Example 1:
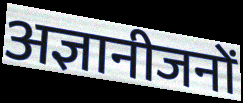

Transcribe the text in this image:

अज्ञानीजनों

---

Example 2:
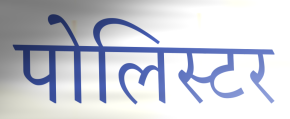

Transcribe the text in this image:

पोलिस्टर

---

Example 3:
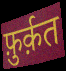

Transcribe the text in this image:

फ़ुर्क़त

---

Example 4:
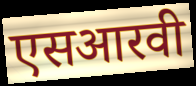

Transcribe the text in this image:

एसआरवी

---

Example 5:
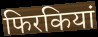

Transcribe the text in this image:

फिरकियां